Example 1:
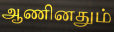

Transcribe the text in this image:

ஆணினதும்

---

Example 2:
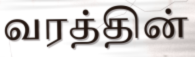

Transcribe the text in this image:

வரத்தின்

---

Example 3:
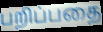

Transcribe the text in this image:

பறிப்பதை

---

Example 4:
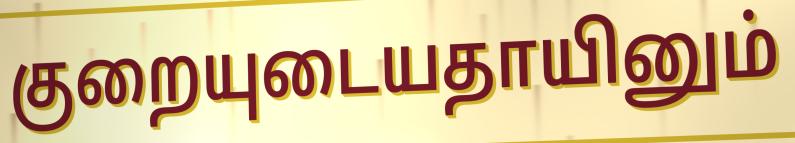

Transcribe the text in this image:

குறையுடையதாயினும்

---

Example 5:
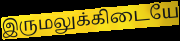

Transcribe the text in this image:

இருமலுக்கிடையே